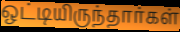
ஒட்டியிருந்தார்கள்